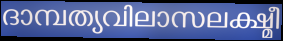
ദാമ്പത്യവിലാസലക്ഷ്മീ